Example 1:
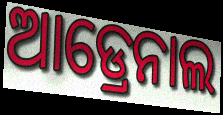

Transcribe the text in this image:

ଆଡ୍ରେନାଲ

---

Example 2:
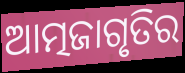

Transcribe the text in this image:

ଆତ୍ମଜାଗୃତିର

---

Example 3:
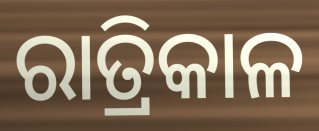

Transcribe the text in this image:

ରାତ୍ରିକାଳ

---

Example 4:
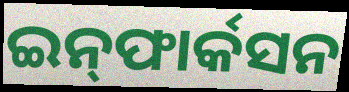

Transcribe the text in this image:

ଇନ୍‌ଫାର୍କସନ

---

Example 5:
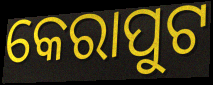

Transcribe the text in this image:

କେରାପୁଟ